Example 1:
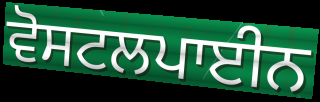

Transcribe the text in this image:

ਵੋਸਟਲਪਾਈਨ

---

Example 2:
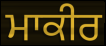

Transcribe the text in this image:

ਮਾਕੀਰ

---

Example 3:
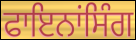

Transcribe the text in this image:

ਫਾਇਨਾਂਸਿੰਗ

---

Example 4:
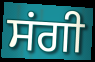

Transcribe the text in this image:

ਸਂਗੀ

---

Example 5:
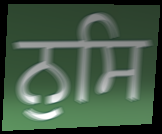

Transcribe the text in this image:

ਨੁਸਿ